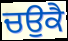
ਚਉਕੈ